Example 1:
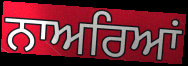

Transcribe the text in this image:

ਨਾਅਰਿਆਂ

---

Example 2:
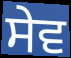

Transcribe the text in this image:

ਸੇਵ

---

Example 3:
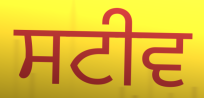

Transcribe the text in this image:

ਸਟੀਵ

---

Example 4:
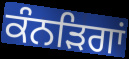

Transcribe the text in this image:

ਕੰਨੜਿਗਾਂ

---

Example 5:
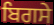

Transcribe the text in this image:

ਬਿਗਸੇ